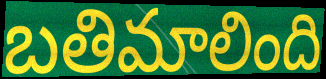
బతిమాలింది